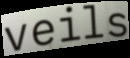
veils